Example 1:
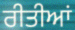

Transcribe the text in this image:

ਰੀਤੀਆਂ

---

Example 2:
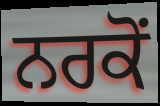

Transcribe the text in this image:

ਨਰਕੋਂ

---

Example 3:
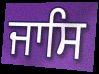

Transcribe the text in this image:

ਜਾਸਿ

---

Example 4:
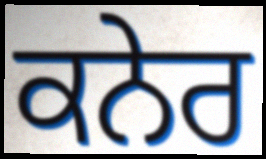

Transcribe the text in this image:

ਕਨੇਰ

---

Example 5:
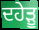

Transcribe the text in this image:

ਦਹੇੜੂ